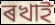
ৰখাই